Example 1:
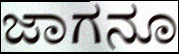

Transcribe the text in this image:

ಜಾಗನೂ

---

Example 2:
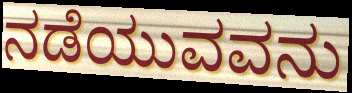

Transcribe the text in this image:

ನಡೆಯುವವನು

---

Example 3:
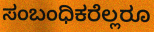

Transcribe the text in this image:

ಸಂಬಂಧಿಕರೆಲ್ಲರೂ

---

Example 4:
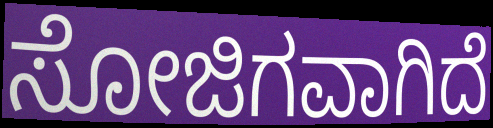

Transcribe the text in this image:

ಸೋಜಿಗವಾಗಿದೆ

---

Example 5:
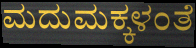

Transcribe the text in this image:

ಮದುಮಕ್ಕಳಂತೆ